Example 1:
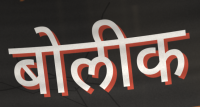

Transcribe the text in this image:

बोलीक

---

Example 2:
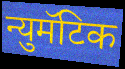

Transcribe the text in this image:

न्युमॅटिक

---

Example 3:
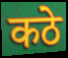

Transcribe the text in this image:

कठे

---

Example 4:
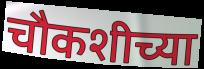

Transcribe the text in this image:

चौकशीच्या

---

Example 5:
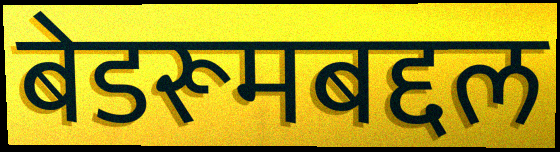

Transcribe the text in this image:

बेडरूमबद्दल